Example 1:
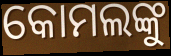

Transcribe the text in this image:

କୋମଲଙ୍କୁ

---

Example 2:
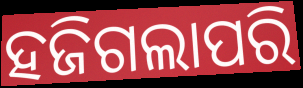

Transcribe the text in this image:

ହଜିଗଲାପରି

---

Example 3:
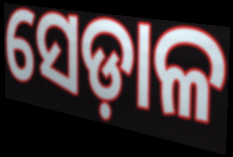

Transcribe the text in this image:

ସେଡ଼ାଳ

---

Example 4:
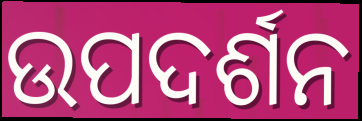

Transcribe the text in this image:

ଉପଦର୍ଶନ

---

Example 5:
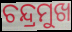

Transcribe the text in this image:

ଚନ୍ଦ୍ରମୁଖ